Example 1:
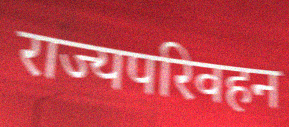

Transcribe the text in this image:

राज्यपरिवहन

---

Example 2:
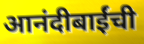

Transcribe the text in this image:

आनंदीबाईंची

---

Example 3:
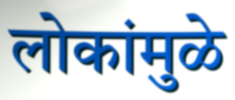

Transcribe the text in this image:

लोकांमुळे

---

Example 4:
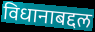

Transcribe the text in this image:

विधानाबद्दल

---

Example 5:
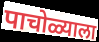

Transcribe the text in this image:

पाचोळ्याला